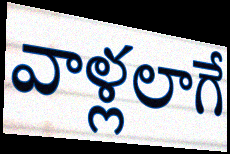
వాళ్లలాగే